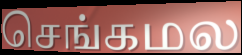
செங்கமல